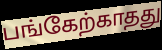
பங்கேற்காதது